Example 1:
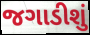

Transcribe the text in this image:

જગાડીશું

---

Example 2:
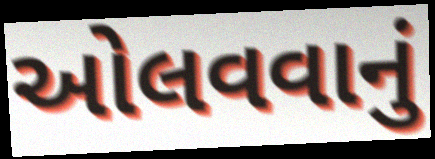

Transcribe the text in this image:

ઓલવવાનું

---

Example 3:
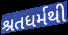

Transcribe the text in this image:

શ્રતધર્મથી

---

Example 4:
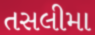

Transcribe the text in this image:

તસલીમા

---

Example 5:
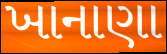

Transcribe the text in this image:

ખાનાણા